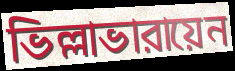
ভিল্লাভারায়েন